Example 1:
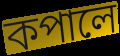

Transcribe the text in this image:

কপালে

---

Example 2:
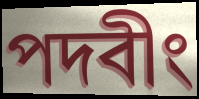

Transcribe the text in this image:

পদবীং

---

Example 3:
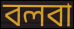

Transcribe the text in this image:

বলবা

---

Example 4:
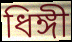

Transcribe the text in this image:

ধিঙ্গী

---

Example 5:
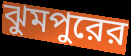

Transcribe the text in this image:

ঝুমপুরের